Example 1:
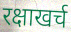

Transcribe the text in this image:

रक्षाखर्च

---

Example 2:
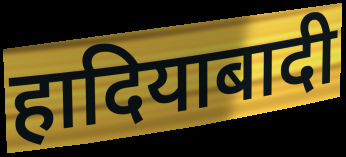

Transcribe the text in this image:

हादियाबादी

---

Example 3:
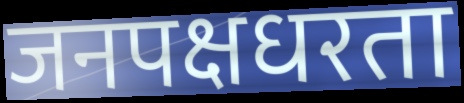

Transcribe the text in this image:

जनपक्षधरता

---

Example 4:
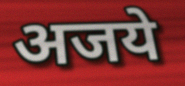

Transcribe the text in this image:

अजये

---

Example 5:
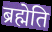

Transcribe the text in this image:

ब्रह्मेति